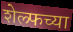
शेल्फच्या